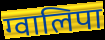
ग्वालिपा